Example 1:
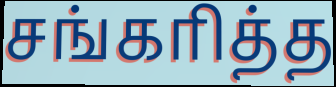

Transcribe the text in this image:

சங்கரித்த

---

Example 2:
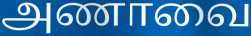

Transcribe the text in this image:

அணாவை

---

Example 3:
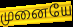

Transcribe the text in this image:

முனையே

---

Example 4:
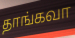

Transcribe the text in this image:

தாங்கவா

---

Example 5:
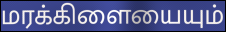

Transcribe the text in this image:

மரக்கிளையையும்